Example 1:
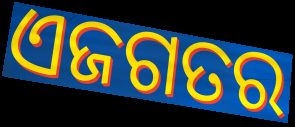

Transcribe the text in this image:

ଏଜଗତର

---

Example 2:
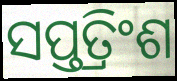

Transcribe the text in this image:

ସପ୍ତତ୍ରିଂଶ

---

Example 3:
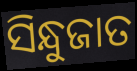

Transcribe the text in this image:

ସିନ୍ଧୁଜାତ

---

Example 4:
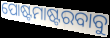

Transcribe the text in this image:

ପୋଷ୍ଟମାଷ୍ଟରବାବୁ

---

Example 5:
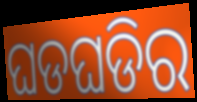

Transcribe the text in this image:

ଘଡଘଡିର